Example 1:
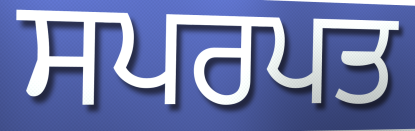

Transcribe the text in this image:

ਸਪਰਪਤ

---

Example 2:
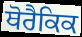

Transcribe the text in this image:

ਥੋਰੈਕਿਕ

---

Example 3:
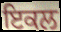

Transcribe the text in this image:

ਇਕਲ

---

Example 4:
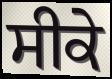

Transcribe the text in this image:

ਸੀਕੇ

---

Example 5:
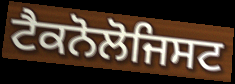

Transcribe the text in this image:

ਟੈਕਨੋਲੋਜਿਸਟ